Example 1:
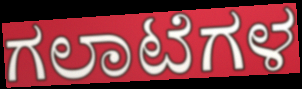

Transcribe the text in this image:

ಗಲಾಟೆಗಳ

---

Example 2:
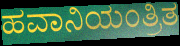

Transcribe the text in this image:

ಹವಾನಿಯಂತ್ರಿತ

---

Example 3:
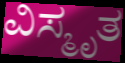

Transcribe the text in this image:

ವಿಸ್ಮೃತ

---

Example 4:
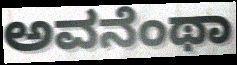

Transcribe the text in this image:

ಅವನೆಂಥಾ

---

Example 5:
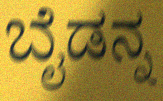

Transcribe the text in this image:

ಬೈಡನ್ನ